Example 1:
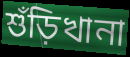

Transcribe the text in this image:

শুঁড়িখানা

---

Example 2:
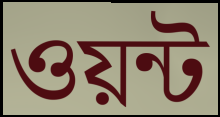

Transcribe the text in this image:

ওয়ন্ট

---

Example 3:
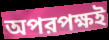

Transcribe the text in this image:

অপরপক্ষই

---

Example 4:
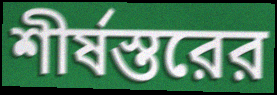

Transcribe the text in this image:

শীর্ষস্তরের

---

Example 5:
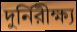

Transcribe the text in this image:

দুর্নিরীক্ষ্য